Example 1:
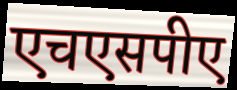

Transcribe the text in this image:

एचएसपीए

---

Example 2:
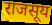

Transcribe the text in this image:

राजसूय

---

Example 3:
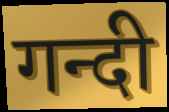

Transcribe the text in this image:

गन्दी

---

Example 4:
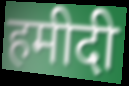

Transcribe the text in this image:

हमीदी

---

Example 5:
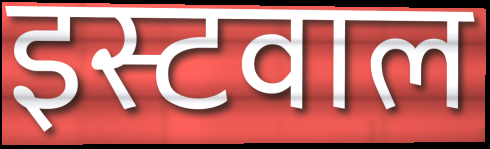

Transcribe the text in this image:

इस्टवाल